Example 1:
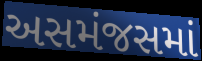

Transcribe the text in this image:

અસમંજસમાં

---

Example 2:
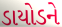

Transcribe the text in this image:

ડાયોડને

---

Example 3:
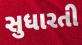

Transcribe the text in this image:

સુધારતી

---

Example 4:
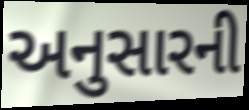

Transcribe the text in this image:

અનુસારની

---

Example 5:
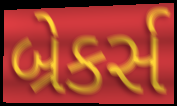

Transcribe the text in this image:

બ્રેકર્સ